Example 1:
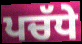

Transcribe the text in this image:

ਪਚੱਧੇ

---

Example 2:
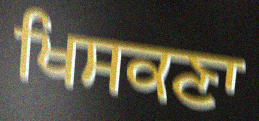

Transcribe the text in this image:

ਖਿਸਕਣਾ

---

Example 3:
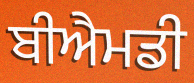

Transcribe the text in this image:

ਬੀਐਮਡੀ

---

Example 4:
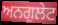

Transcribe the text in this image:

ਅਨਗੁਲੇਟ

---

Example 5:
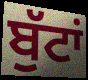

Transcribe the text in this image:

ਬੁੱਟਾਂ